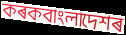
কৰকবাংলাদেশৰ